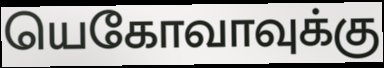
யெகோவாவுக்கு